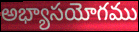
అభ్యాసయోగము